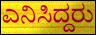
ಎನಿಸಿದ್ದರು